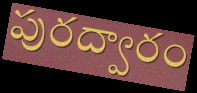
పురద్వారం